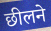
छीलने